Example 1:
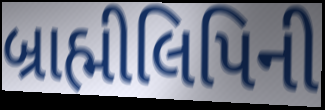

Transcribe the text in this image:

બ્રાહ્મીલિપિની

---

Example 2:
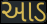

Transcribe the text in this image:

આડ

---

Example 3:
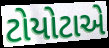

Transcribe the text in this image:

ટોયોટાએ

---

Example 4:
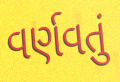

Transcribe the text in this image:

વર્ણવતું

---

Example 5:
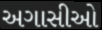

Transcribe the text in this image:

અગાસીઓ